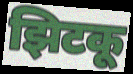
झिटकू